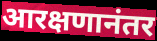
आरक्षणानंतर